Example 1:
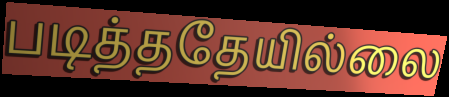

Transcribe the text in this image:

படித்ததேயில்லை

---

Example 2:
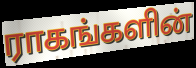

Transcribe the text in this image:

ராகங்களின்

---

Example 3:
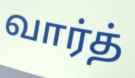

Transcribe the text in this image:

வார்த்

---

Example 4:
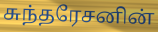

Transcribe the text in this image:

சுந்தரேசனின்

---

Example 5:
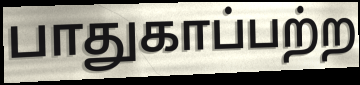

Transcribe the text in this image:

பாதுகாப்பற்ற